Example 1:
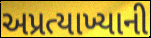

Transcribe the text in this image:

અપ્રત્યાખ્યાની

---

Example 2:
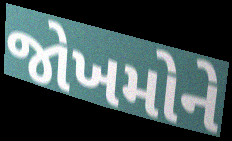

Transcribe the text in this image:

જોખમોને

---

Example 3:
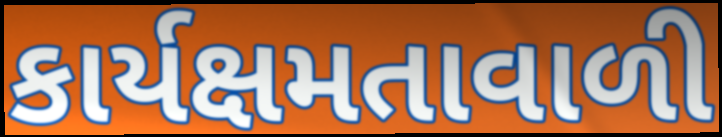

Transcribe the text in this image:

કાર્યક્ષમતાવાળી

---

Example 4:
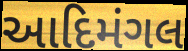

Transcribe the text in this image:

આદિમંગલ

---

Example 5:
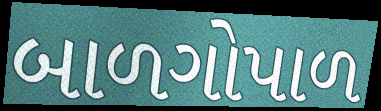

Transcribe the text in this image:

બાળગોપાળ